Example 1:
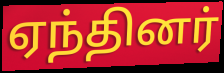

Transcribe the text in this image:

ஏந்தினர்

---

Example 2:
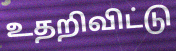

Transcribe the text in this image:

உதறிவிட்டு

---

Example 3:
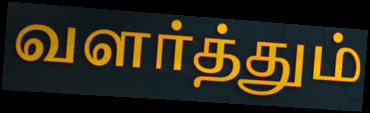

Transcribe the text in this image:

வளர்த்தும்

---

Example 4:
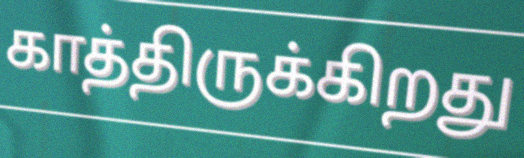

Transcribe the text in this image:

காத்திருக்கிறது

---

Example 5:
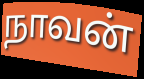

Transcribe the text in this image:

நாவன்